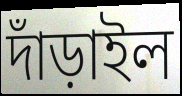
দাঁড়াইল